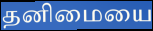
தனிமையை